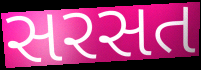
સરસત